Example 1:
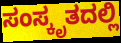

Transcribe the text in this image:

ಸಂಸ್ಕೃತದಲ್ಲಿ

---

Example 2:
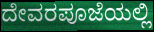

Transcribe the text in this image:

ದೇವರಪೂಜೆಯಲ್ಲಿ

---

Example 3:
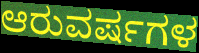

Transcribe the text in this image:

ಆರುವರ್ಷಗಳ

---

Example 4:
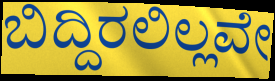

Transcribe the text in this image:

ಬಿದ್ದಿರಲಿಲ್ಲವೇ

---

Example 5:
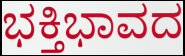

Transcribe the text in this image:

ಭಕ್ತಿಭಾವದ